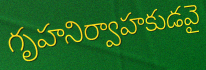
గృహనిర్వాహకుడవై